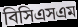
বিসিএসএম